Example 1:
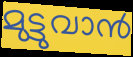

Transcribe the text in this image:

മുട്ടുവാൻ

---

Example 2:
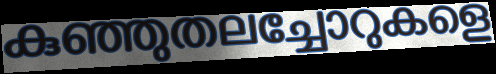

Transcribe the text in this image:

കുഞ്ഞുതലച്ചോറുകളെ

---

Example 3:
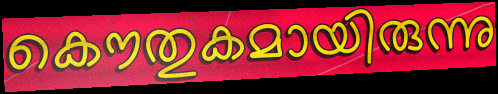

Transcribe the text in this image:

കൌതുകമായിരുന്നു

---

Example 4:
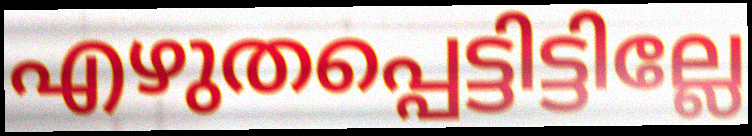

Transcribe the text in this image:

എഴുതപ്പെട്ടിട്ടില്ലേ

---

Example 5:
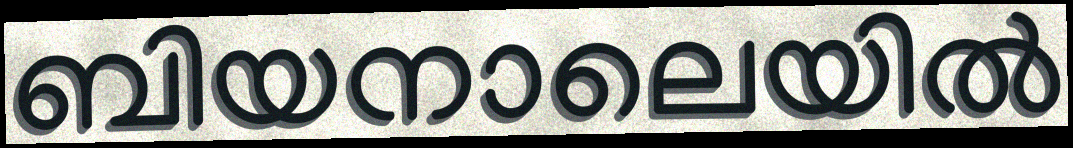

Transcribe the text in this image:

ബിയനാലെയിൽ